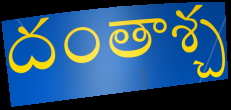
దంతాశ్చ